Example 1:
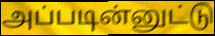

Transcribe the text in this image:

அப்படின்னுட்டு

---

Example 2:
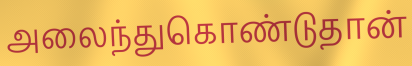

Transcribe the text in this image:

அலைந்துகொண்டுதான்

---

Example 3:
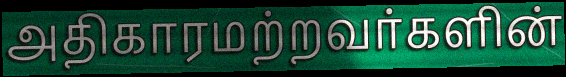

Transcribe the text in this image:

அதிகாரமற்றவர்களின்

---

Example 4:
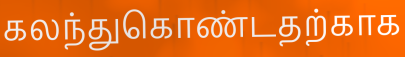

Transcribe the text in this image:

கலந்துகொண்டதற்காக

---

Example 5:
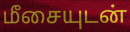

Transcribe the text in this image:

மீசையுடன்